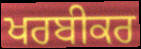
ਖਰਬੀਕਰ